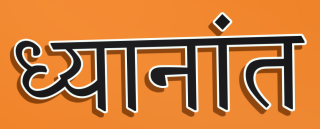
ध्यानांत